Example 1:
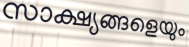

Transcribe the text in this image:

സാക്ഷ്യങ്ങളെയും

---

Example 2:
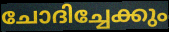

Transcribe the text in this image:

ചോദിച്ചേക്കും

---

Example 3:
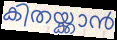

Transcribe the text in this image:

കിതയ്ക്കാൻ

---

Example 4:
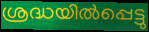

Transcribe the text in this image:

ശ്രദ്ധയിൽപ്പെട്ടു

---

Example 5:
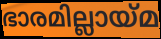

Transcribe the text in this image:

ഭാരമില്ലായ്മ